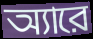
অ্যারে